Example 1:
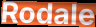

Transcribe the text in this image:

Rodale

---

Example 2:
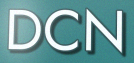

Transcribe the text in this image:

DCN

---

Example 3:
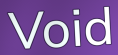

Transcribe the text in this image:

Void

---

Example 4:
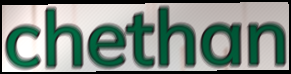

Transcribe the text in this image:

chethan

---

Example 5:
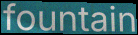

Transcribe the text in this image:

fountain